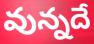
వున్నదే